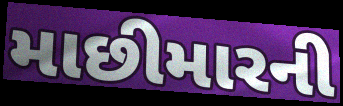
માછીમારની